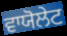
ਵਾਯੋਲੇਟ